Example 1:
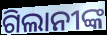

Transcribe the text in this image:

ଗିଲାନୀଙ୍କ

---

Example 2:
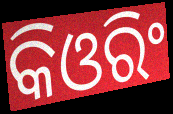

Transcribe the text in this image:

କିଓରିଂ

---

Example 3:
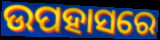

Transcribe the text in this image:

ଉପହାସରେ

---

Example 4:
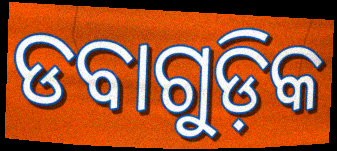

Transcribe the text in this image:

ଡବାଗୁଡ଼ିକ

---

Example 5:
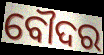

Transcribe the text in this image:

ବୌଦର